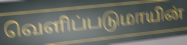
வெளிப்படுமாயின்